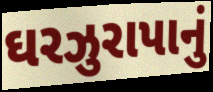
ઘરઝુરાપાનું